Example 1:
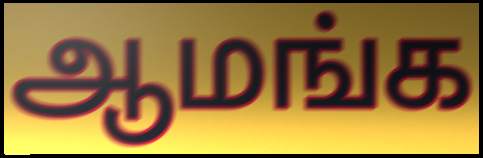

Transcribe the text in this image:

ஆமங்க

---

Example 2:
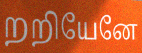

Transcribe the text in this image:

றறியேனே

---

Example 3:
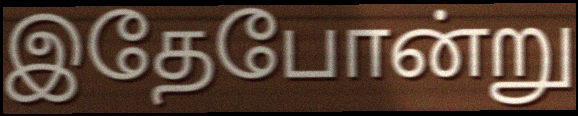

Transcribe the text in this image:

இதேபோன்று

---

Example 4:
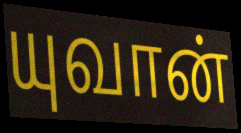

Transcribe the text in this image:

யுவான்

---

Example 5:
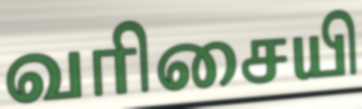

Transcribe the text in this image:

வரிசையி